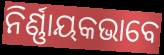
ନିର୍ଣ୍ଣାୟକଭାବେ